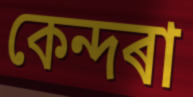
কেন্দৰা